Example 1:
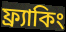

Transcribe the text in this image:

ফ্র্যাকিং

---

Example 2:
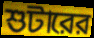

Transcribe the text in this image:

শুটারের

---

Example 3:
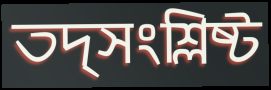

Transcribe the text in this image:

তদ্‌সংশ্লিষ্ট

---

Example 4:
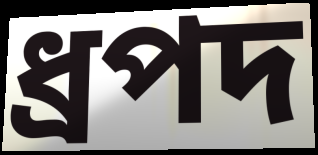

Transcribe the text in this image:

ধ্রপদ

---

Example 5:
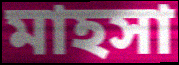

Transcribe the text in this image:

মাহসা